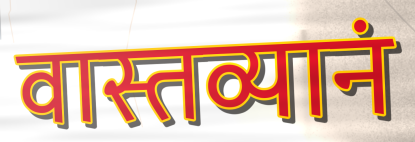
वास्तव्यानं